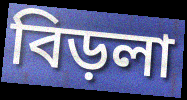
বিড়লা